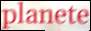
planete